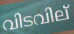
വിടവില്